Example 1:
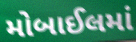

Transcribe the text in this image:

મોબાઈલમાં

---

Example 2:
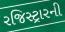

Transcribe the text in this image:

રજિસ્ટ્રારની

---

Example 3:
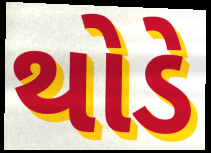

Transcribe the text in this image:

થોડે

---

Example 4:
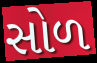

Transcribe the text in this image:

સોળ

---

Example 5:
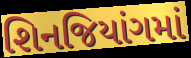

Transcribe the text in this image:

શિનજિયાંગમાં